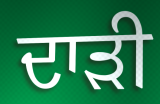
ਦਾੜੀ